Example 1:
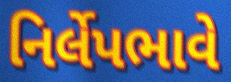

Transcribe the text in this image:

નિર્લેપભાવે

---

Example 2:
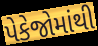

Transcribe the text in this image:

પેકેજોમાંથી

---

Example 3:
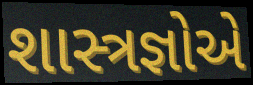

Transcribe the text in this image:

શાસ્ત્રજ્ઞોએ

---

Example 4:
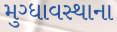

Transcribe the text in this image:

મુગ્ધાવસ્થાના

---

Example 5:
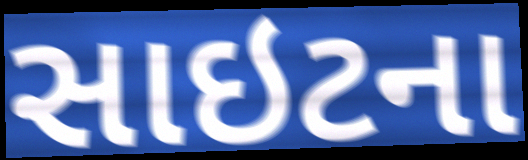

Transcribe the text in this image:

સાઇટના